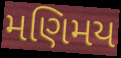
મણિમય